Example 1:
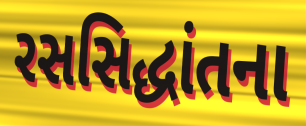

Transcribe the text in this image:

રસસિદ્ધાંતના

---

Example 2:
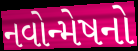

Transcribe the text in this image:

નવોન્મેષનો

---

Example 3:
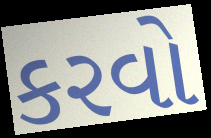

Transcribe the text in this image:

કરવો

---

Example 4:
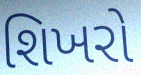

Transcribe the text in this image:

શિખરો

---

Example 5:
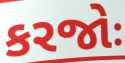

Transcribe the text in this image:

કરજોઃ